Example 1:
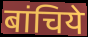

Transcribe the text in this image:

बांचिये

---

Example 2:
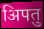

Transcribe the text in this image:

अिपतु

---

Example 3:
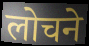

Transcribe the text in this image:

लोचने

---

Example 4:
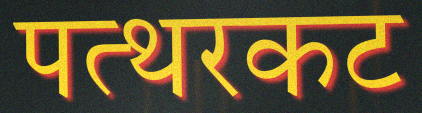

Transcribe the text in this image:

पत्थरकट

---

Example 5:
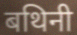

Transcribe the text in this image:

बथिनी